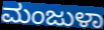
ಮಂಜುಳಾ